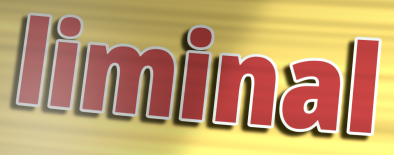
liminal